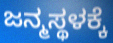
ಜನ್ಮಸ್ಥಳಕ್ಕೆ